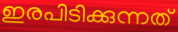
ഇരപിടിക്കുന്നത്